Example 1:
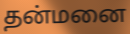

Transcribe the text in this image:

தன்மனை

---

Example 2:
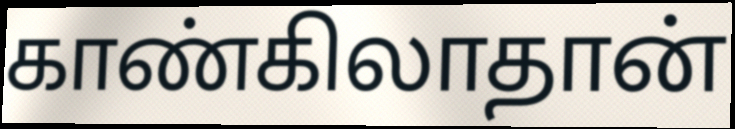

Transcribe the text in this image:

காண்கிலாதான்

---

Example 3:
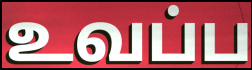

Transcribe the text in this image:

உவப்ப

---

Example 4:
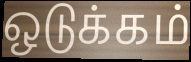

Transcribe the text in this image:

ஒடுக்கம்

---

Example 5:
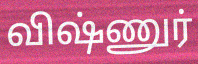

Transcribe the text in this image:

விஷ்ணுர்